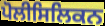
ਪੋਲੀਸਿਲਿਕਨ